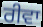
ਰੀਵਾ